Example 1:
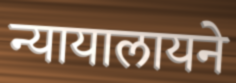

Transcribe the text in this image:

न्यायालायने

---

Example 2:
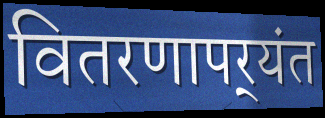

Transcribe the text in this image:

वितरणापर्यंत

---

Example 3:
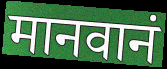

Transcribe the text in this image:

मानवानं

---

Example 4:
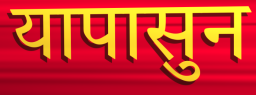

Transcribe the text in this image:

यापासुन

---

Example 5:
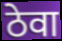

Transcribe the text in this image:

ठेवा